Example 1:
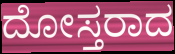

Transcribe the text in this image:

ದೋಸ್ತರಾದ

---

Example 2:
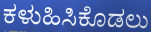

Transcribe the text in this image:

ಕಳುಹಿಸಿಕೊಡಲು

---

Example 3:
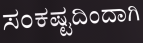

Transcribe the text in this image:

ಸಂಕಷ್ಟದಿಂದಾಗಿ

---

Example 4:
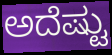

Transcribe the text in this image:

ಅದೆಷ್ಟು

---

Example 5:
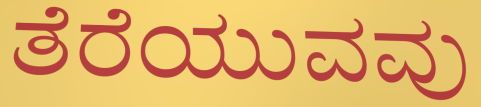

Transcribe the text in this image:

ತೆರೆಯುವವು